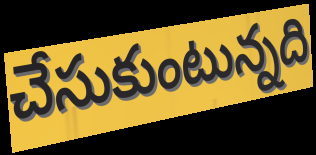
చేసుకుంటున్నది